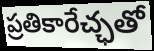
ప్రతికారేచ్ఛతో